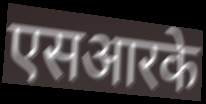
एसआरके